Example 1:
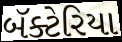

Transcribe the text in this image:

બૅક્ટેરિયા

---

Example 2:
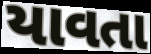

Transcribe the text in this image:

યાવતા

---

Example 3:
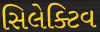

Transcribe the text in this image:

સિલેક્ટિવ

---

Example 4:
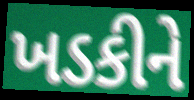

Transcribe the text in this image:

ખડકીને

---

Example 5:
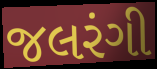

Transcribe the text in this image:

જલરંગી